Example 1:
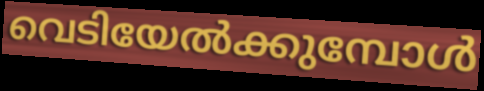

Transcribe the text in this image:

വെടിയേൽക്കുമ്പോൾ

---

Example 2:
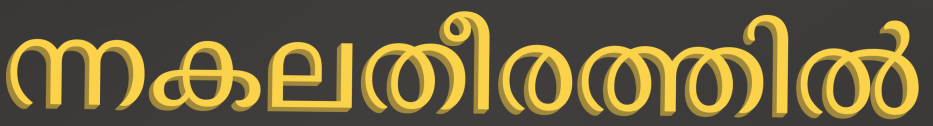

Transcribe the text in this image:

ന്നകലതീരത്തിൽ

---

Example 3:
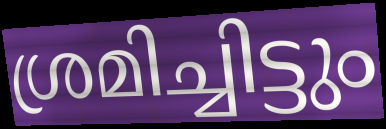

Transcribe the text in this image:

ശ്രമിച്ചിട്ടും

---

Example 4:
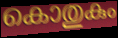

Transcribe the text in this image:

കൊതുകും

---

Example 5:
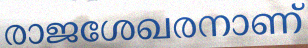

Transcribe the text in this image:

രാജശേഖരനാണ്